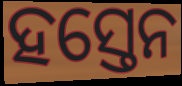
ହସ୍ତେନ